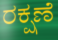
ರಕ್ಷಣೆ